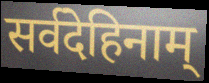
सर्वदेहिनाम्